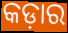
କଡ଼ାର